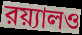
রয়্যালও